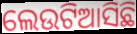
ଲେଉଟିଆସିଛି